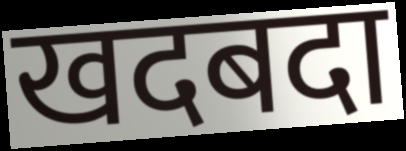
खदबदा